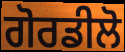
ਗੋਰਡੀਲੋ